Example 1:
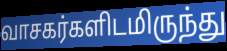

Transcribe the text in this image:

வாசகர்களிடமிருந்து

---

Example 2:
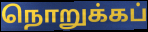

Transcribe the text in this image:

நொறுக்கப்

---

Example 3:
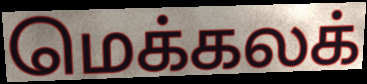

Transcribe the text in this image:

மெக்கலக்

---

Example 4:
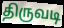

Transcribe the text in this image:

திருவடி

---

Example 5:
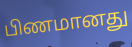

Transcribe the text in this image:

பிணமானது